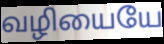
வழியையே